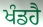
ਖੰਡਹੈ